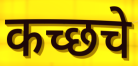
कच्छचे